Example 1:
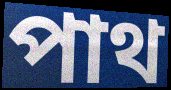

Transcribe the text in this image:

পাথ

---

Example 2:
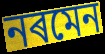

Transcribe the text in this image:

নৰমেন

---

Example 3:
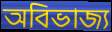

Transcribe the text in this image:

অবিভাজ্য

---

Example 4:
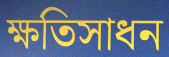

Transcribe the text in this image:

ক্ষতিসাধন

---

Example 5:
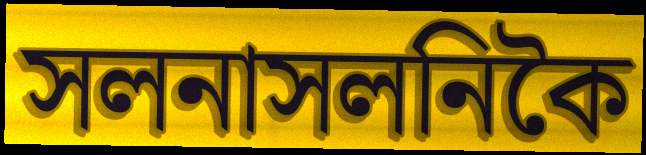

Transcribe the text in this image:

সলনাসলনিকৈ